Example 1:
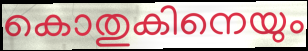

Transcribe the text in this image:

കൊതുകിനെയും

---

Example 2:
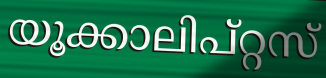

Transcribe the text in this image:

യൂക്കാലിപ്റ്റസ്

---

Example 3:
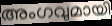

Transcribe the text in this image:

അംഗവുമായി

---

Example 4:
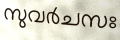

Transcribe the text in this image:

സുവർചസഃ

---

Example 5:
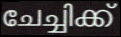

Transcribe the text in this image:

ചേച്ചിക്ക്